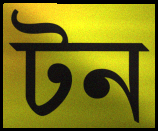
টন